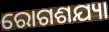
ରୋଗଶଯ୍ୟା